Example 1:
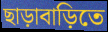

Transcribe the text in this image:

ছাড়াবাড়িতে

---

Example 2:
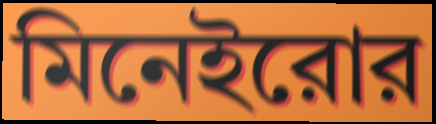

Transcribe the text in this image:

মিনেইরোর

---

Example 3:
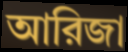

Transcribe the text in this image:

আরিজা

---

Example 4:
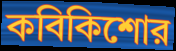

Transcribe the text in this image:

কবিকিশোর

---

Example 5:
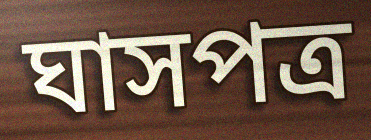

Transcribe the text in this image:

ঘাসপত্র